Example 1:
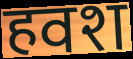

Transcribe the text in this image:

हवश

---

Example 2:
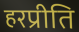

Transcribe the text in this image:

हरप्रीति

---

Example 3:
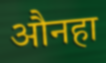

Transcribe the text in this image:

औनहा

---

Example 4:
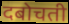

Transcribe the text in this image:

दबोचती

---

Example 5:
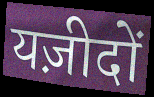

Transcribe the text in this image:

यज़ीदों